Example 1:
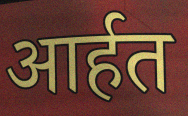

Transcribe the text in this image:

आर्हत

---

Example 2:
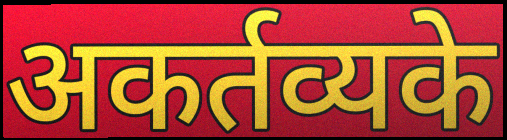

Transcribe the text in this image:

अकर्तव्यके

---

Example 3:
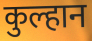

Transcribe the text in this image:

कुल्हान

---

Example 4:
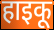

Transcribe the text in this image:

हाइकू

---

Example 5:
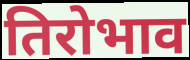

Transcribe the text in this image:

तिरोभाव